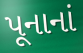
પૂનાનાં